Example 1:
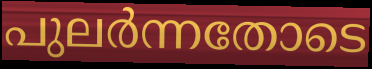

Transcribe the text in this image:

പുലർന്നതോടെ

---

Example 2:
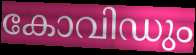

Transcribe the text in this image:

കോവിഡും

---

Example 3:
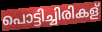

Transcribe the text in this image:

പൊട്ടിച്ചിരികള്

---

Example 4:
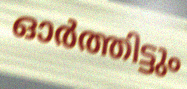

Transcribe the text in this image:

ഓർത്തിട്ടും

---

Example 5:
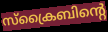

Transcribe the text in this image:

സ്ക്രൈബിന്റെ